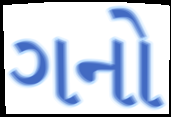
ગનો